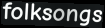
folksongs